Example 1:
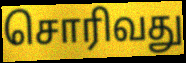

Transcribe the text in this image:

சொரிவது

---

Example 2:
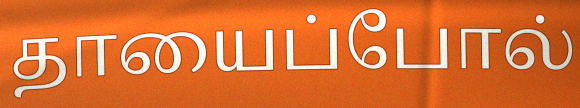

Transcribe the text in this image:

தாயைப்போல்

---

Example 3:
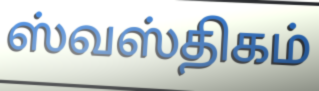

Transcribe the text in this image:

ஸ்வஸ்திகம்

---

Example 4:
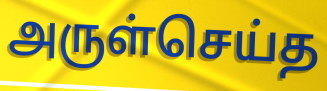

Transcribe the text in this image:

அருள்செய்த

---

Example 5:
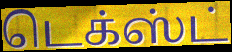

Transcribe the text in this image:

டெக்ஸ்ட்